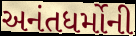
અનંતધર્મોની